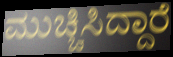
ಮುಚ್ಚಿಸಿದ್ದಾರೆ